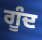
ਗੂੰਦ